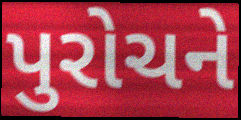
પુરોચને